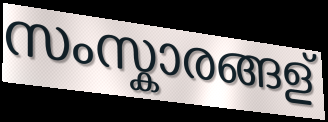
സംസ്കാരങ്ങള്